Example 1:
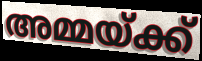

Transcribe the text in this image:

അമ്മയ്ക്ക്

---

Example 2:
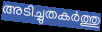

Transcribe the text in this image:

അടിച്ചുതകർത്തു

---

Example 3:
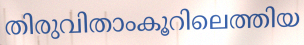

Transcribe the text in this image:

തിരുവിതാംകൂറിലെത്തിയ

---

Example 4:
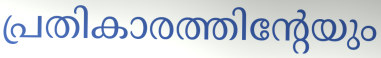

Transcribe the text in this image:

പ്രതികാരത്തിന്റേയും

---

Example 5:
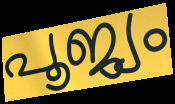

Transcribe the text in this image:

പൂജ്യം